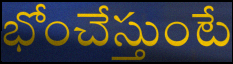
భోంచేస్తుంటే